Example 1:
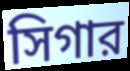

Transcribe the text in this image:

সিগার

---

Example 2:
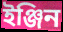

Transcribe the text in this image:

ইঞ্জিন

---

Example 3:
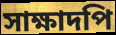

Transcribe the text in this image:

সাক্ষাদপি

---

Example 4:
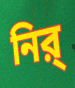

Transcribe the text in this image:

নির্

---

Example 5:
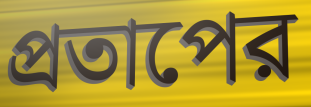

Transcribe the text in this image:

প্রতাপের